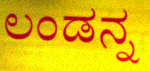
ಲಂಡನ್ನ